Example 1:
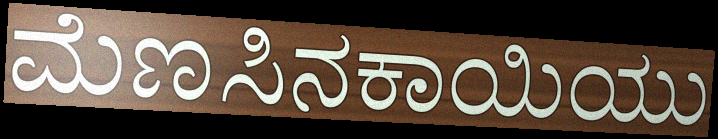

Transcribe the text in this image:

ಮೆಣಸಿನಕಾಯಿಯು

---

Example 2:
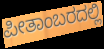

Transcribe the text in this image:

ಪೀತಾಂಬರದಲ್ಲಿ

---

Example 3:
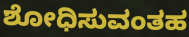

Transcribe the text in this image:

ಶೋಧಿಸುವಂತಹ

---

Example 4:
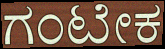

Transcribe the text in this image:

ಗಂಟೇಕ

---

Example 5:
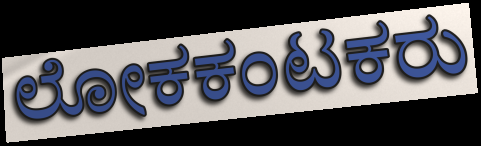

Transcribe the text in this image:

ಲೋಕಕಂಟಕರು